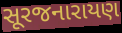
સૂરજનારાયણ